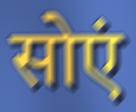
सोएं